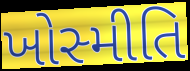
ખોસ્મીતિ